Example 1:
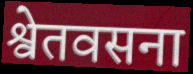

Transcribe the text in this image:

श्वेतवसना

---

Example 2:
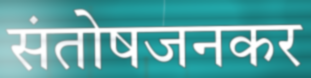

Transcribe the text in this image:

संतोषजनकर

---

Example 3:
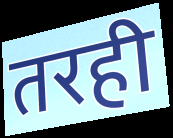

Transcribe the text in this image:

तरही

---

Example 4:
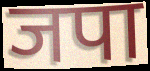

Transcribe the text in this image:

जपा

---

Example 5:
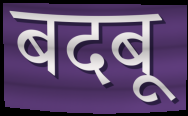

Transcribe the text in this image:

बदबू